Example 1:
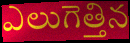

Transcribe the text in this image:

ఎలుగెత్తిన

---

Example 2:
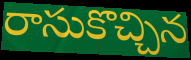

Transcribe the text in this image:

రాసుకొచ్చిన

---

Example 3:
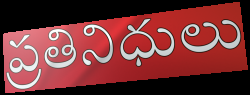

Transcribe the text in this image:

ప్రతినిధులు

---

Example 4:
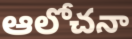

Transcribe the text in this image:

ఆలోచనా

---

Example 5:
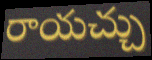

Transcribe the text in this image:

రాయచ్చు